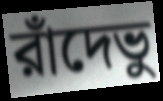
রাঁদেভু